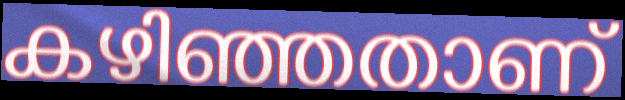
കഴിഞ്ഞതാണ്